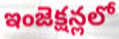
ఇంజెక్షన్లలో